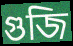
গুজি